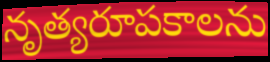
నృత్యరూపకాలను